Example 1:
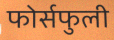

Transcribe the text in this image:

फोर्सफुली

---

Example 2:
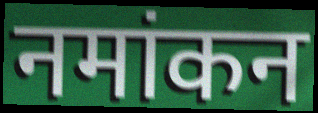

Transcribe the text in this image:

नमांकन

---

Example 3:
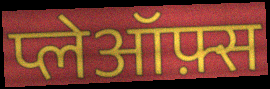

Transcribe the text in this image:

प्लेऑफ़्स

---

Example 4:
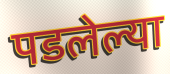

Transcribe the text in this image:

पडलेल्या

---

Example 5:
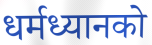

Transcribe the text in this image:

धर्मध्यानको